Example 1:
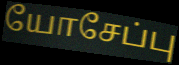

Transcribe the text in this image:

யோசேப்பு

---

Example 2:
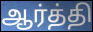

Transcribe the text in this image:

ஆர்த்தி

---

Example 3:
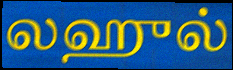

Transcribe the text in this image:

லஹுல்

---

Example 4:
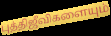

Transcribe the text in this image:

புத்திஜீவிகளையும்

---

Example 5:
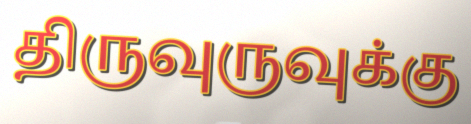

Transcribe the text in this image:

திருவுருவுக்கு